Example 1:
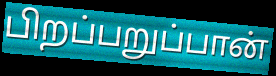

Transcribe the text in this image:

பிறப்பறுப்பான்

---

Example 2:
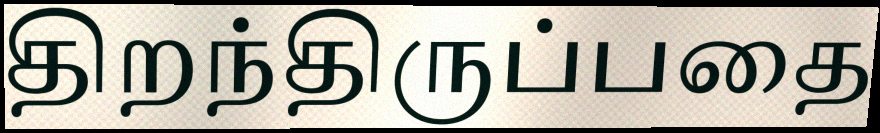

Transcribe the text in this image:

திறந்திருப்பதை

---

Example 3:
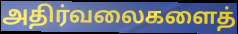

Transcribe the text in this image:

அதிர்வலைகளைத்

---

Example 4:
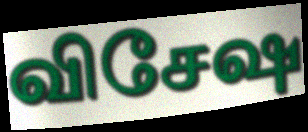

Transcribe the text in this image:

விசேஷ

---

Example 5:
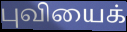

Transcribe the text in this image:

புவியைக்